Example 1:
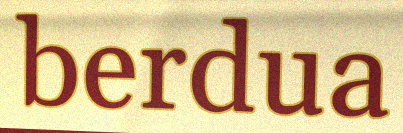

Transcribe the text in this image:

berdua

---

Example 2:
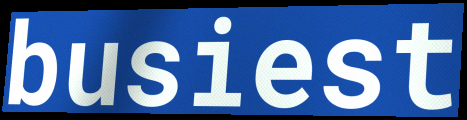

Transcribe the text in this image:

busiest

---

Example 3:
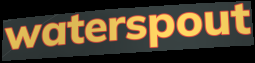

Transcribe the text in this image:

waterspout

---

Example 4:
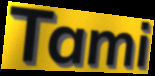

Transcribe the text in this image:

Tami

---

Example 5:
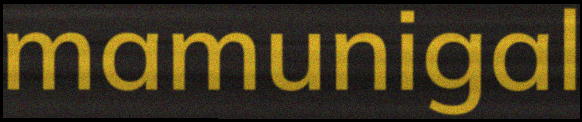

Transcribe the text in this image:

mamunigal